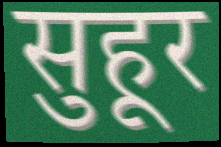
सुहूर